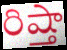
రిష్తా